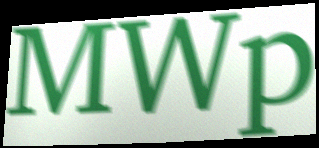
MWp